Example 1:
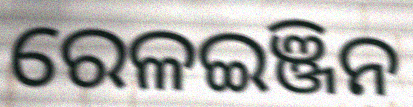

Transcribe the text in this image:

ରେଳଇଞ୍ଜିନ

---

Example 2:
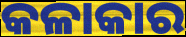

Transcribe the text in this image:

କଳାକାର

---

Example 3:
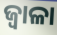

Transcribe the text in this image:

ଜ୍ୱାଳା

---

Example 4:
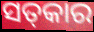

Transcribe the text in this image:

ସତ୍‌କାର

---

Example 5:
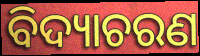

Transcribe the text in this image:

ବିଦ୍ୟାଚରଣ